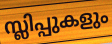
സ്ലിപ്പുകളും